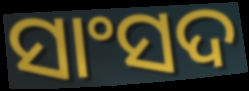
ସାଂସଦ